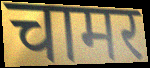
चामर